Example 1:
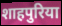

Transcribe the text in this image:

शाहपुरिया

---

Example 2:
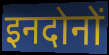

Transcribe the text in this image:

इनदोनों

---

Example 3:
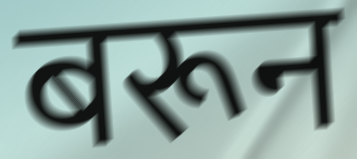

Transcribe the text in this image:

बरून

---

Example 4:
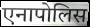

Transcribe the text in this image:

एनापोलिस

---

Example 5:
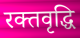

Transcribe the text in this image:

रक्तवृद्धि